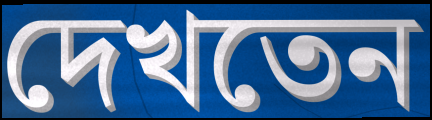
দেখতেন